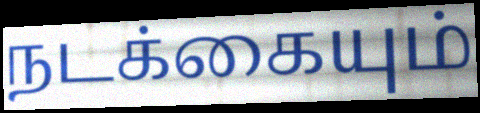
நடக்கையும்